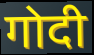
गोदी